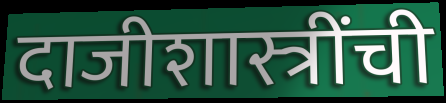
दाजीशास्त्रींची